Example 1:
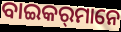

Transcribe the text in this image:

ବାଇକର୍‌ମାନେ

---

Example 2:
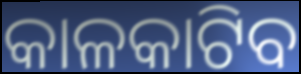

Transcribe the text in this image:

କାଳକାଟିବ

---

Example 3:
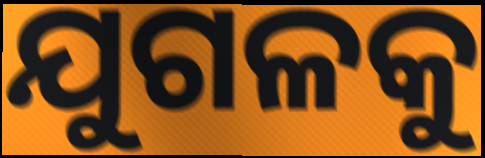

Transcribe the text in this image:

ଯୁଗଳକୁ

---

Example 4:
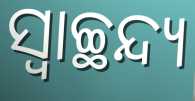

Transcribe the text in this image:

ସ୍ୱାଚ୍ଛନ୍ଦ୍ୟ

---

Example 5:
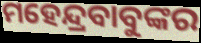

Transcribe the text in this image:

ମହେନ୍ଦ୍ରବାବୁଙ୍କର